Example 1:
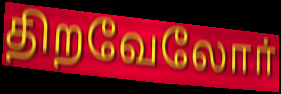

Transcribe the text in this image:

திறவேலோர்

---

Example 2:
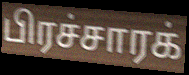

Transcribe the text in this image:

பிரச்சாரக்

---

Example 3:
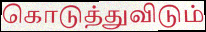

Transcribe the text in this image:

கொடுத்துவிடும்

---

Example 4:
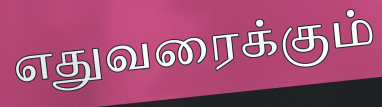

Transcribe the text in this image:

எதுவரைக்கும்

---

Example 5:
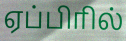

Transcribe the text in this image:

ஏப்பிரில்